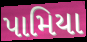
પામિયા